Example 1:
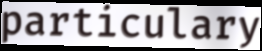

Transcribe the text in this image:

particulary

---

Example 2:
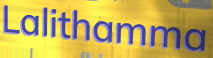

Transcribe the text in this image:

Lalithamma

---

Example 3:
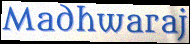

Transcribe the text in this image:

Madhwaraj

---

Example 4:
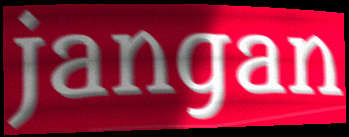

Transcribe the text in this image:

jangan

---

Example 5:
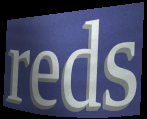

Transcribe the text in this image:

reds